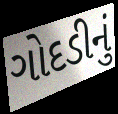
ગોદડીનું